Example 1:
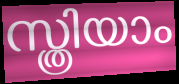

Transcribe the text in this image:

സ്ത്രിയാം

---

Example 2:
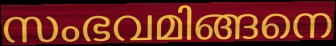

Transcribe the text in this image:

സംഭവമിങ്ങനെ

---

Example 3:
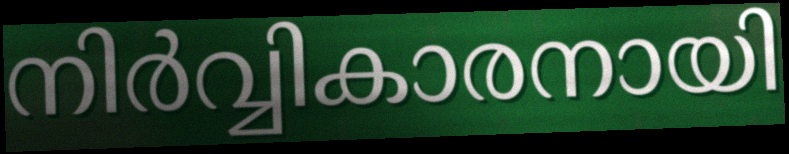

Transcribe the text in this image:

നിർവ്വികാരനായി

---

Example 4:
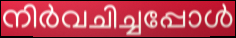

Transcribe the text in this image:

നിർവചിച്ചപ്പോൾ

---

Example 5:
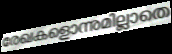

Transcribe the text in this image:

രേഖകളൊന്നുമില്ലാതെ